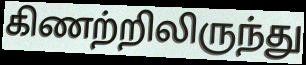
கிணற்றிலிருந்து